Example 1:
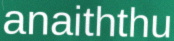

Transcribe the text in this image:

anaiththu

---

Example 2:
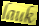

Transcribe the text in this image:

lauk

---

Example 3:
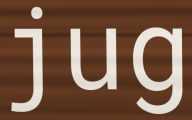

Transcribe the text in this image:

jug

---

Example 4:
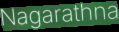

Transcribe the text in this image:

Nagarathna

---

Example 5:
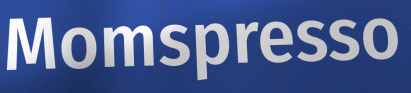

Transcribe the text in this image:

Momspresso